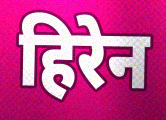
हिरेन